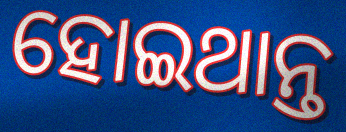
ହୋଇଥାନ୍ତ